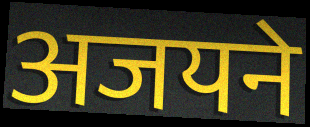
अजयने